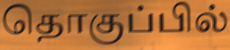
தொகுப்பில்